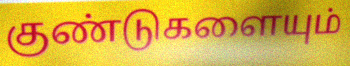
குண்டுகளையும்